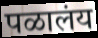
पळालंय